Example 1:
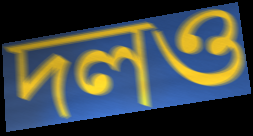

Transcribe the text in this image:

দলও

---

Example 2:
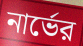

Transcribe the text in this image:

নার্ভের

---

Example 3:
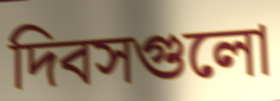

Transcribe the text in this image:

দিবসগুলো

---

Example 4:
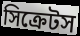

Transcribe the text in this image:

সিক্রেটস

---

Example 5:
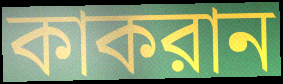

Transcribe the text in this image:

কাকরান